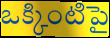
ఒక్కింటిపై